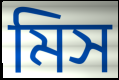
মিস